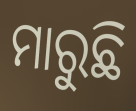
ମାରୁଛି